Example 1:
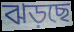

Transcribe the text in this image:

ঝড়ছে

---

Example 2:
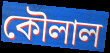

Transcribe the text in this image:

কৌলাল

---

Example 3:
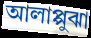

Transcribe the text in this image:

আলাপ্পুঝা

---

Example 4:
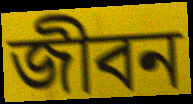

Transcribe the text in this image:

জীবন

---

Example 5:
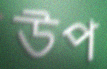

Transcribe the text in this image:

উপ